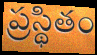
ప్రస్థితం